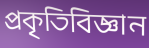
প্রকৃতিবিজ্ঞান